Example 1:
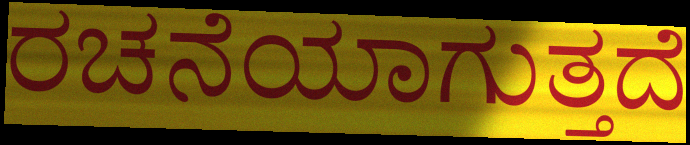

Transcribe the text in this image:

ರಚನೆಯಾಗುತ್ತದೆ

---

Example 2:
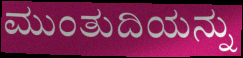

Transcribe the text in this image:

ಮುಂತುದಿಯನ್ನು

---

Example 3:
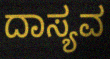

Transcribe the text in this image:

ದಾಸ್ಯವ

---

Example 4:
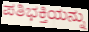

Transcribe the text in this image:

ಪತಿಭಕ್ತಿಯನ್ನು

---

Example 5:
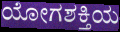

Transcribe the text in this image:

ಯೋಗಶಕ್ತಿಯ